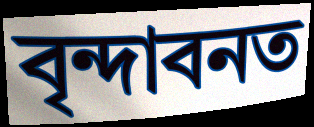
বৃন্দাবনত